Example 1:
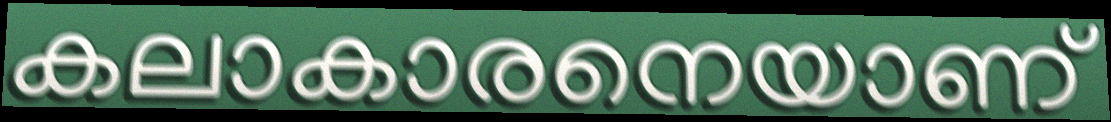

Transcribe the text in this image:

കലാകാരനെയാണ്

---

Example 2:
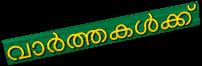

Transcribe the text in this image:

വാർത്തകൾക്ക്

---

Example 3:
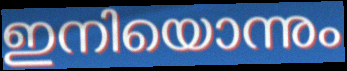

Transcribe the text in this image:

ഇനിയൊന്നും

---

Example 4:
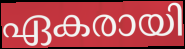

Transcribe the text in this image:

ഏകരായി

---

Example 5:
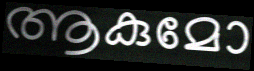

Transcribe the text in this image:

ആകുമോ